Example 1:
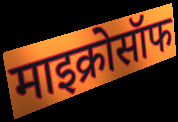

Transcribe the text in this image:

माइक्रोसॉफ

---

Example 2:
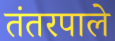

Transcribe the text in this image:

तंतरपाले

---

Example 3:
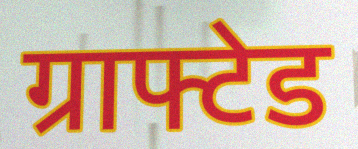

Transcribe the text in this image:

ग्राफ्टेड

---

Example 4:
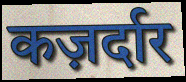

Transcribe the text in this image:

कज़र्दार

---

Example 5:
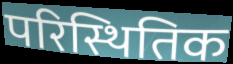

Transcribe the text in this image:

परिस्थितिक